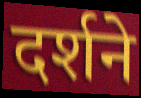
दर्शने